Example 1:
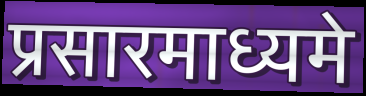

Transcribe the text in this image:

प्रसारमाध्यमे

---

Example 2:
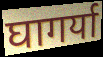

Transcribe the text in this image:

घागर्या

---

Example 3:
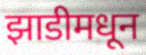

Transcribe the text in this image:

झाडीमधून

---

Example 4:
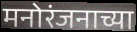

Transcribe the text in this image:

मनोरंजनाच्या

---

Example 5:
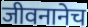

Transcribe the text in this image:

जीवनानेच